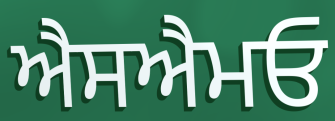
ਐਸਐਮਓ